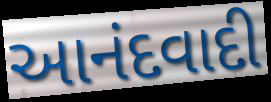
આનંદવાદી